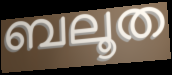
ബലൂത